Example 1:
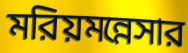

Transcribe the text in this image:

মরিয়মন্নেসার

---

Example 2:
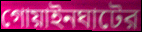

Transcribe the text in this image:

গোয়াইনঘাটের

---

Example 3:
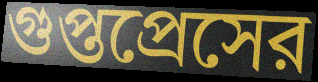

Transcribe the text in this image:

গুপ্তপ্রেসের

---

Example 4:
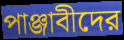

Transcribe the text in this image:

পাঞ্জাবীদের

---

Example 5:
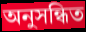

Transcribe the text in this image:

অনুসন্ধিত